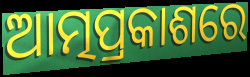
ଆତ୍ମପ୍ରକାଶରେ